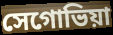
সেগোভিয়া